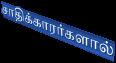
சாதிக்காரர்களால்